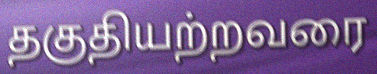
தகுதியற்றவரை